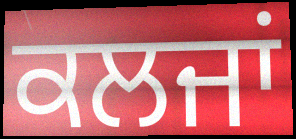
ਕਲਜਾਂ